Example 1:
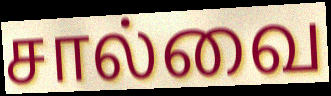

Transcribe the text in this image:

சால்வை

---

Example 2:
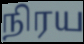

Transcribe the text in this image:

நிரய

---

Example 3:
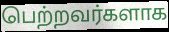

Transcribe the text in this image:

பெற்றவர்களாக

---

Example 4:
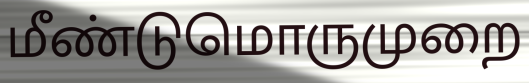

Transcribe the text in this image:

மீண்டுமொருமுறை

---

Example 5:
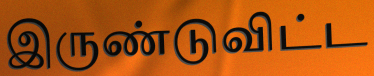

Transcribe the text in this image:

இருண்டுவிட்ட